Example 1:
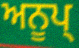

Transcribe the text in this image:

ਅਨੂਪ੍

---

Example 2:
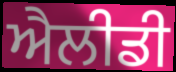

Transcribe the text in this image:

ਐਲੀਡੀ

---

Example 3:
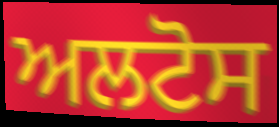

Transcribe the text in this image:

ਅਲਟੋਸ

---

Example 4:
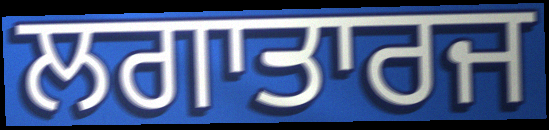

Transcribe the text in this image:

ਲਗਾਤਾਰਜ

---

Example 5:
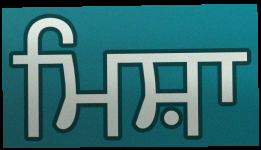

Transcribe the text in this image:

ਮਿਸ਼ਾ